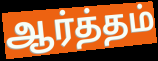
ஆர்த்தம்